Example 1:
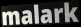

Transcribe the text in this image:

malark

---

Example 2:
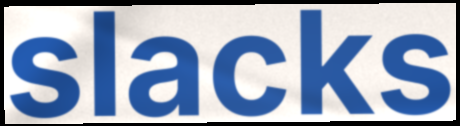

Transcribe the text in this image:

slacks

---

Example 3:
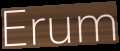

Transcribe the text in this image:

Erum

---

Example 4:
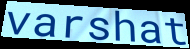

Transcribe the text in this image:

varshat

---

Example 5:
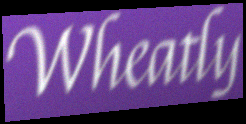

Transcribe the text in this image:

Wheatly